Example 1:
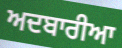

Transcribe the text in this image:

ਅਦਬਾਰੀਆ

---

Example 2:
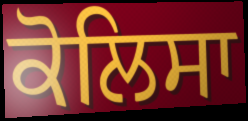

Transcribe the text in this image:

ਕੋਲਿਸਾ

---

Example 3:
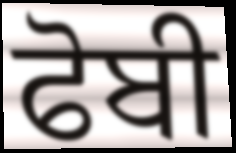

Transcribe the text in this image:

ਫੋਬੀ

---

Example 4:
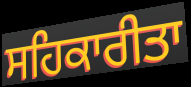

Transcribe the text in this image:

ਸਹਿਕਾਰੀਤਾ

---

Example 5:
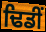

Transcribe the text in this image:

ਢਿਡੀਂ